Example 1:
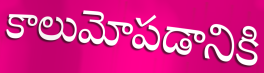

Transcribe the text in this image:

కాలుమోపడానికి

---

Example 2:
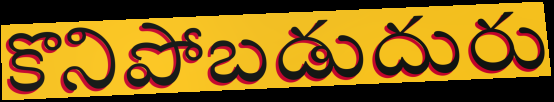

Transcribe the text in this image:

కొనిపోబడుదురు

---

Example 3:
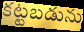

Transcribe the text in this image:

కట్టబడును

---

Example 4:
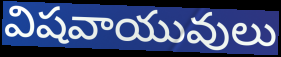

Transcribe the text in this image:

విషవాయువులు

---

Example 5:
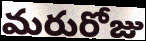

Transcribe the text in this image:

మరురోజు